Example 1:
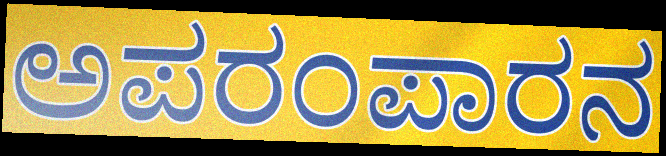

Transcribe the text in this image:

ಅಪರಂಪಾರನ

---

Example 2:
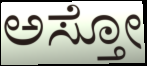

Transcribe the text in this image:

ಅಸ್ತೋ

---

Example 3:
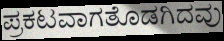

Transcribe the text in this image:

ಪ್ರಕಟವಾಗತೊಡಗಿದವು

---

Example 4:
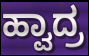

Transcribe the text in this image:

ಹ್ವಾದ್ರ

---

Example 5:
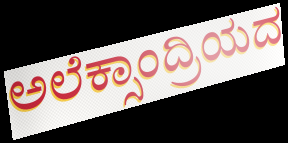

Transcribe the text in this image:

ಅಲೆಕ್ಸಾಂದ್ರಿಯದ